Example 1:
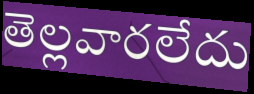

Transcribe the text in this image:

తెల్లవారలేదు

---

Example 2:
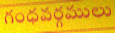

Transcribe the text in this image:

గంధవర్గములు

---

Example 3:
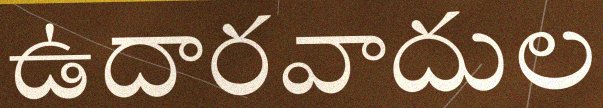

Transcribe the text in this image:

ఉదారవాదుల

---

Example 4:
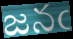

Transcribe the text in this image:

జనఁ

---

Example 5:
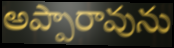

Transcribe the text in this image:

అప్పారావును